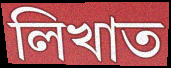
লিখাত